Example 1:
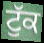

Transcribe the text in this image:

ਟੁੱਕ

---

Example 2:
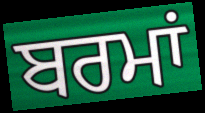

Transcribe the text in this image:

ਬਰਮਾਂ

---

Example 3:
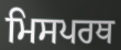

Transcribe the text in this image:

ਮਿਸਪਰਥ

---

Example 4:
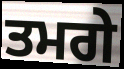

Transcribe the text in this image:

ਤਮਗੇ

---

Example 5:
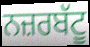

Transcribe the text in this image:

ਨਜ਼ਰਬੱਟੂ